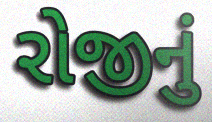
રોજીનું